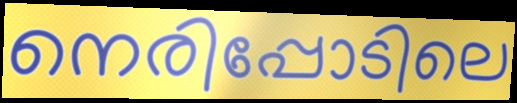
നെരിപ്പോടിലെ